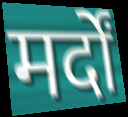
मर्दों